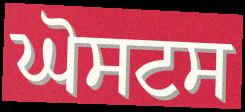
ਘੋਸਟਸ